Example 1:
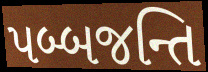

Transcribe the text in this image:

પબ્બજન્તિ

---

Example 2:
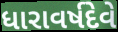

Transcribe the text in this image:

ધારાવર્ષદેવે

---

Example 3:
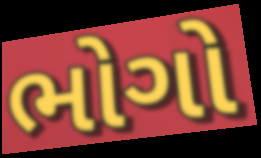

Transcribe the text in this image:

ભોગો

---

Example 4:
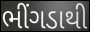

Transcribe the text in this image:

ભીંગડાથી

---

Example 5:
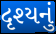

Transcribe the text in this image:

દૃશ્યનું